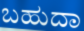
ಬಹುದಾ